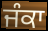
ਜੰਕਾ